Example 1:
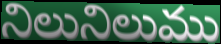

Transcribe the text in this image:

నిలునిలుము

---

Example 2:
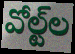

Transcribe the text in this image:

వోల్ట్‌ల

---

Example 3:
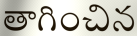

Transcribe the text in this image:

తాగించిన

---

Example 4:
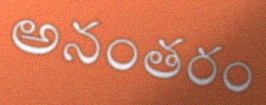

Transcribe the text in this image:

అనంతరం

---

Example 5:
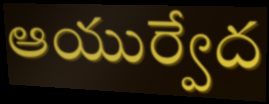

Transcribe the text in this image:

ఆయుర్వేద